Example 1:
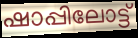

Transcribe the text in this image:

ഷാപ്പിലോട്ട്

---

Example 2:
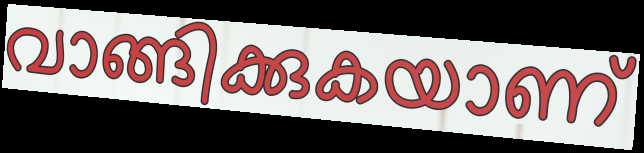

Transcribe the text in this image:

വാങ്ങിക്കുകയാണ്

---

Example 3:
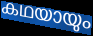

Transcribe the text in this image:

കഥയായും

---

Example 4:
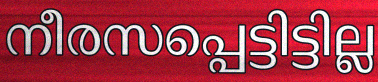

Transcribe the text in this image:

നീരസപ്പെട്ടിട്ടില്ല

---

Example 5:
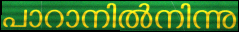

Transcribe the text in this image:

പാറാനിൽനിന്നു